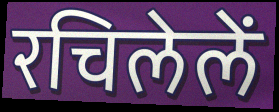
रचिलेलें